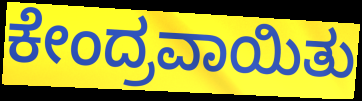
ಕೇಂದ್ರವಾಯಿತು